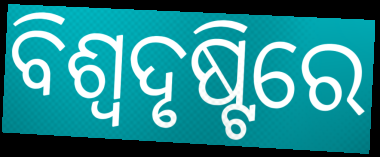
ବିଶ୍ଵଦୃଷ୍ଟିରେ